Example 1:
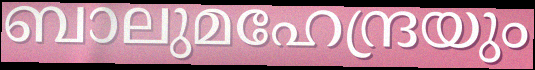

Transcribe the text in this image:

ബാലുമഹേന്ദ്രയും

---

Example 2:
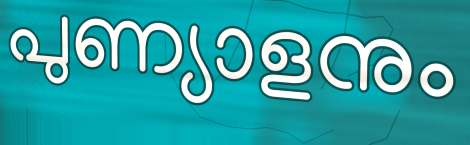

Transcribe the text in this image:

പുണ്യാളനും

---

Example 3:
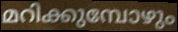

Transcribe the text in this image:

മറിക്കുമ്പോഴും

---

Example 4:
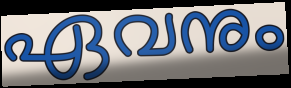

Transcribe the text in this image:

ഏവനും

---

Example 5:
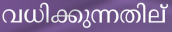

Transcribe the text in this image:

വധിക്കുന്നതില്